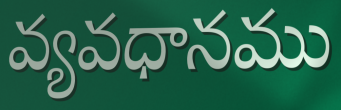
వ్యవధానము